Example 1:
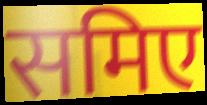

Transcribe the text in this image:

समिए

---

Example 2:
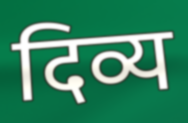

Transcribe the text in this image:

दिव्य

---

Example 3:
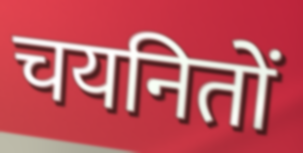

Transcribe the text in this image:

चयनितों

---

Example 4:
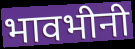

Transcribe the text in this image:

भावभीनी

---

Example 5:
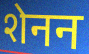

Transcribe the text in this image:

शेनन